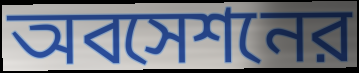
অবসেশনের